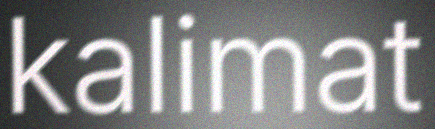
kalimat